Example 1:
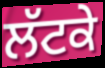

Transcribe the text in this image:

ਲੱਟਕੇ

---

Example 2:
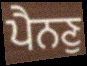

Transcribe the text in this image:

ਪੈਨਣੁ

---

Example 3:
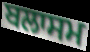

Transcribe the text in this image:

ਬਲਾਸਮ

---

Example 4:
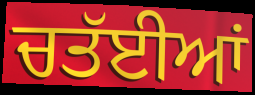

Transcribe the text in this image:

ਚਤੱਈਆਂ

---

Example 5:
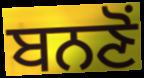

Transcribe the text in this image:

ਬਨਣੋਂ